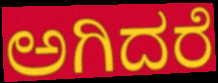
ಅಗಿದರೆ